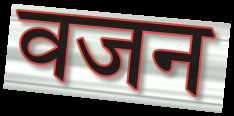
वजन